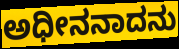
ಅಧೀನನಾದನು